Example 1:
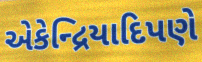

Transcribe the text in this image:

એકેન્દ્રિયાદિપણે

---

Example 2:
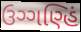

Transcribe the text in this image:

ઉગ્ગણ્હિં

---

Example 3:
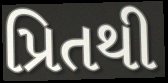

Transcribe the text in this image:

પ્રિતથી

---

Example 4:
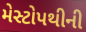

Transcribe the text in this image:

મેસ્ટોપથીની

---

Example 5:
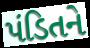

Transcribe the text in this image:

પંડિતને